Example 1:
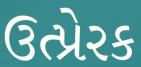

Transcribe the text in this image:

ઉત્પ્રેરક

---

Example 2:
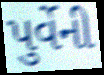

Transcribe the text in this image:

પુર્વેની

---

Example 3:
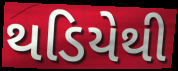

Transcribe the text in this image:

થડિયેથી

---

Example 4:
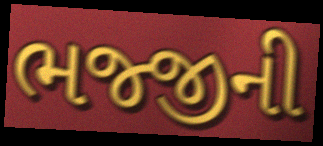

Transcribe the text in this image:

ભજ્જીની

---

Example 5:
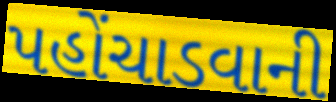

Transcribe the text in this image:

પહોંચાડવાની